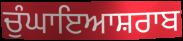
ਚੁੰਘਾਇਆਸ਼ਰਾਬ